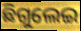
ଛିଗୁଲେଇ